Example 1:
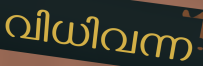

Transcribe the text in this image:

വിധിവന്ന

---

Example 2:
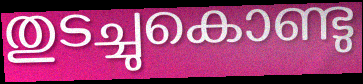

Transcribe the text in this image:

തുടച്ചുകൊണ്ടു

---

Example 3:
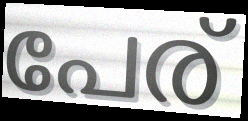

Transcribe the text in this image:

പേര്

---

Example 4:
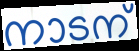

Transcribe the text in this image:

നാടന്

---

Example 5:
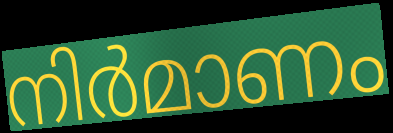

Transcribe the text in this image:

നിർമാണം